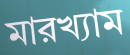
মারখ্যাম